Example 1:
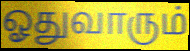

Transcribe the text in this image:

ஓதுவாரும்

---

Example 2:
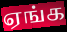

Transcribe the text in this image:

ஏங்க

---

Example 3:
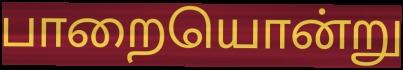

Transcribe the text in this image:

பாறையொன்று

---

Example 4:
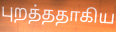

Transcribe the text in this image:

புறத்ததாகிய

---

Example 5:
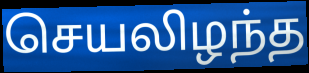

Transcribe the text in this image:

செயலிழந்த